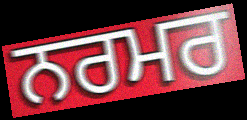
ਨਰਮਰ